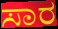
ಸಾರ